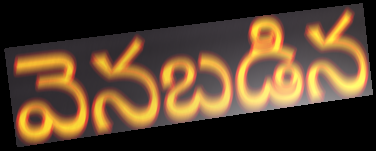
వెనబడిన